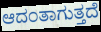
ಆದಂತಾಗುತ್ತದೆ